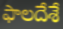
ఫాలదేశే